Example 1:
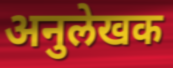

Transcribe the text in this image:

अनुलेखक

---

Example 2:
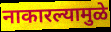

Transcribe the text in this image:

नाकारल्यामुळे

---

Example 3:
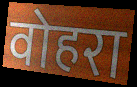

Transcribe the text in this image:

वोहरा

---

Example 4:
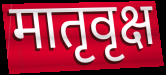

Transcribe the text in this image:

मातृवृक्ष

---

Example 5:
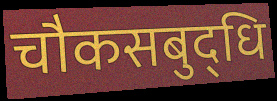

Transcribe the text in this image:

चौकसबुद्धि